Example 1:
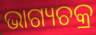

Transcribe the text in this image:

ଭାଗ୍ୟଚକ୍ର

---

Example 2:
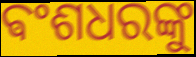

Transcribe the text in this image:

ଵଂଶଧରଙ୍କୁ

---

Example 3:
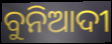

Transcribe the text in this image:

ବୁନିଆଦୀ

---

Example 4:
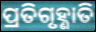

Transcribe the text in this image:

ପ୍ରତିଗୃହ୍ଣାତି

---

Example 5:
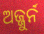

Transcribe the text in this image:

ଅଜ୍ଜୁର୍ନ